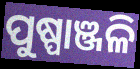
ପୁଷ୍ପାଞ୍ଜଳି